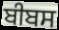
ਬੀਬਸ